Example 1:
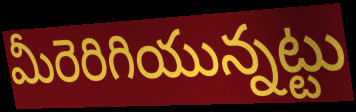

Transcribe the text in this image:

మీరెరిగియున్నట్టు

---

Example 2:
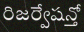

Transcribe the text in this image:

రిజర్వేషన్తో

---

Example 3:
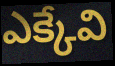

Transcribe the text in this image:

ఎక్కేవి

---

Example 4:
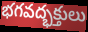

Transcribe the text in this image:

భగవద్భక్తులు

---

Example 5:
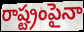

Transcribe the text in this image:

రాష్ట్రంపైనా